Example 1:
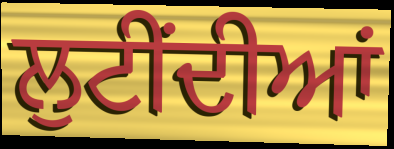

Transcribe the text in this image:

ਲੁਟੀਂਦੀਆਂ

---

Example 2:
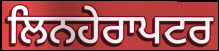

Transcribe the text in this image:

ਲਿਨਹੇਰਾਪਟਰ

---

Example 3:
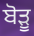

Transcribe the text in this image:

ਬੋੜੂ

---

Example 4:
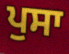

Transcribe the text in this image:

ਪੁਸਾ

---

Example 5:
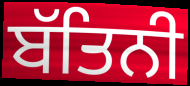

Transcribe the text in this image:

ਬੱਤਿਨੀ